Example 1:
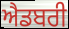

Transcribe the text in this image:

ਐਡਬਰੀ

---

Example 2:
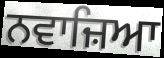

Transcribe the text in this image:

ਨਵਾਜ਼ਿਆ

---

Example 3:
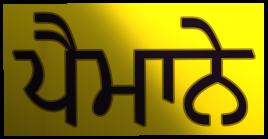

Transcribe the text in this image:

ਪੈਮਾਨੇ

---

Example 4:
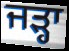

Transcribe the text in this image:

ਜੜ੍ਹਾ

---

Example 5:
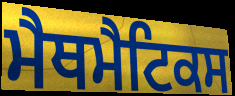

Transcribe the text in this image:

ਮੈਥਮੈਟਿਕਸ